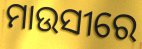
ମାଉସୀରେ